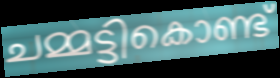
ചമ്മട്ടികൊണ്ട്